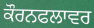
ਕੌਰਨਫਲਾਵਰ